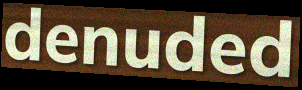
denuded